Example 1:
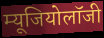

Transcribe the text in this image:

म्यूजियोलॉजी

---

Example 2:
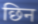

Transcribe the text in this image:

छिन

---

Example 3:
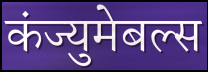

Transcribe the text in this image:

कंज्युमेबल्स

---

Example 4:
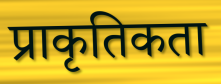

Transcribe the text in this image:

प्राकृतिकता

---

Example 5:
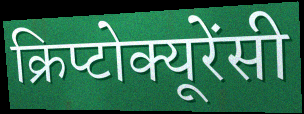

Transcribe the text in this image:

क्रिप्टोक्यूरेंसी